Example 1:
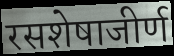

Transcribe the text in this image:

रसशेषाजीर्ण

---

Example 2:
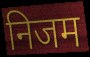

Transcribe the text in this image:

निजम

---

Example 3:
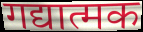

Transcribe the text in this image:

गद्यात्मक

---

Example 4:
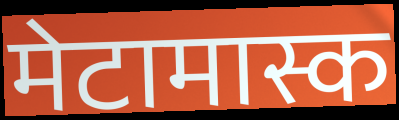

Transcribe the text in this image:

मेटामास्क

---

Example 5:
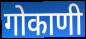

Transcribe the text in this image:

गोकाणी